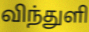
விந்துளி